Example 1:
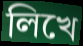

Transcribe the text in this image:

লিখে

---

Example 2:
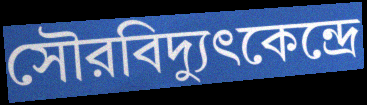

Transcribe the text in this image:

সৌরবিদ্যুৎকেন্দ্রে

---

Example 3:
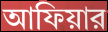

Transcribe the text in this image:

আফিয়ার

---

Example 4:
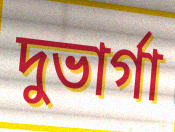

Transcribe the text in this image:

দুভার্গা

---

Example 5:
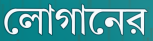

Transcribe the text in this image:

লোগানের